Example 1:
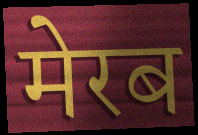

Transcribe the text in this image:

मेरब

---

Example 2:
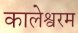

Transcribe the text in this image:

कालेश्वरम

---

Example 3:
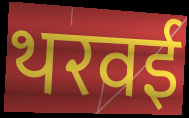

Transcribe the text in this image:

थरवई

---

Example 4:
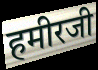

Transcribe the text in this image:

हमीरजी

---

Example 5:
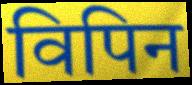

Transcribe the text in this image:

विपिन